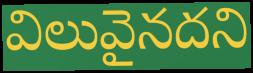
విలువైనదని